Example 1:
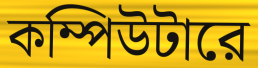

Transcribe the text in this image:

কম্পিউটারে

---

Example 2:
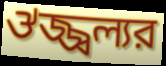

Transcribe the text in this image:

ঔজ্জ্বল্যর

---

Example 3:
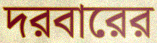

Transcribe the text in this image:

দরবারের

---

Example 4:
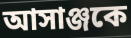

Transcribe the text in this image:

আসাঞ্জকে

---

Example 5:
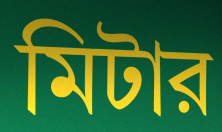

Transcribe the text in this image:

মিটার